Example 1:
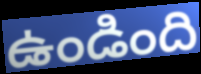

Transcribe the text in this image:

ఉండింది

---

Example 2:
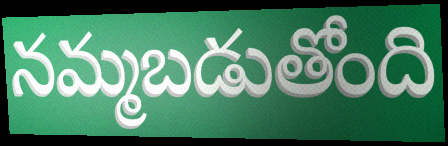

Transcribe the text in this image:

నమ్మబడుతోంది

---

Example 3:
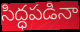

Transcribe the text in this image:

సిద్ధపడినా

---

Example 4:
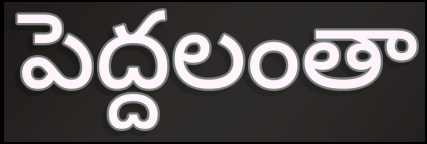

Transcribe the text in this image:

పెద్దలంతా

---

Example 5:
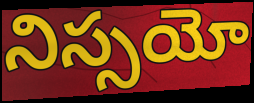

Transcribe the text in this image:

నిస్సయో